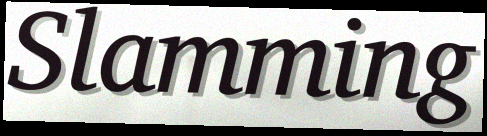
Slamming